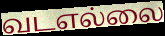
வடஎல்லை